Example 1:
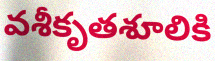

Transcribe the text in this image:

వశీకృతశూలికి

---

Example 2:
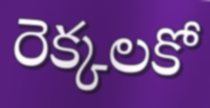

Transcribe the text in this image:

రెక్కలకో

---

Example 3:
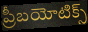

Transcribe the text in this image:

ప్రీబయోటిక్స్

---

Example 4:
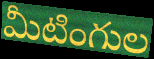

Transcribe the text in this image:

మీటింగుల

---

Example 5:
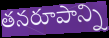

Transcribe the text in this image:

తనరూపాన్ని